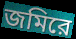
জমিরে